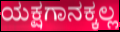
ಯಕ್ಷಗಾನಕ್ಕಲ್ಲ